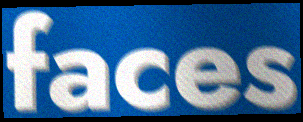
faces